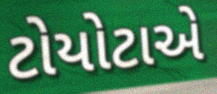
ટોયોટાએ